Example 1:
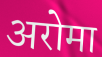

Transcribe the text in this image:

अरोमा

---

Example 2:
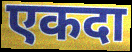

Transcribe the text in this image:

एकदा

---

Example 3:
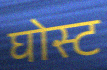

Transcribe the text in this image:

घोस्‍ट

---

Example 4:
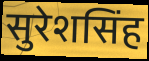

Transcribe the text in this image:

सुरेशसिंह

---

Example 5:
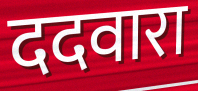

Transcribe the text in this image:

ददवारा